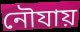
নৌযায়